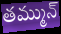
తమ్మున్